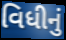
વિધીનું